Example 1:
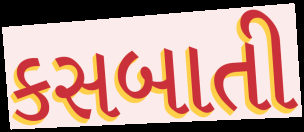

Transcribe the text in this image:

કસબાતી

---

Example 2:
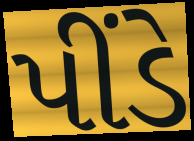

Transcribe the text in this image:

પીંડે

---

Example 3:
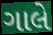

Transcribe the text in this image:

ગાલે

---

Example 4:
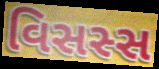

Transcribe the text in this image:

વિસસ્સ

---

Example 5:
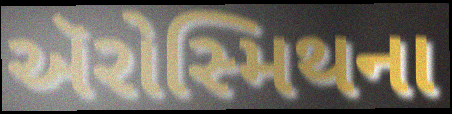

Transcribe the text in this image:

ઍરોસ્મિથના